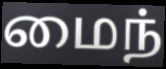
மைந்